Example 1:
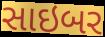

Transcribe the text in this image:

સાઇબર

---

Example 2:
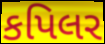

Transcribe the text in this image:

કપિલર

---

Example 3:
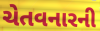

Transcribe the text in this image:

ચેતવનારની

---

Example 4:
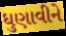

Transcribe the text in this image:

ધુણાવીને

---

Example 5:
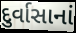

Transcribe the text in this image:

દુર્વાસાનાં